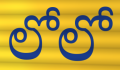
లోలో